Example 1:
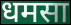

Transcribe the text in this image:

धमसा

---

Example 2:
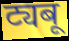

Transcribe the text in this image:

ट्यबू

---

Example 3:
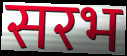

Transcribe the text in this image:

सरभ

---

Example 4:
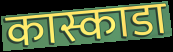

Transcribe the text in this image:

कास्काडा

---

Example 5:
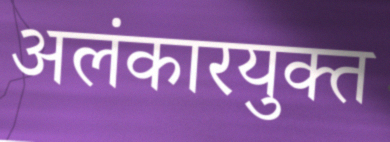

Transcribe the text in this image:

अलंकारयुक्त